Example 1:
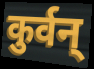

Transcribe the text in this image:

कुर्वन्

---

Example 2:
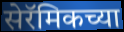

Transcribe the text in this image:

सेरॅमिकच्या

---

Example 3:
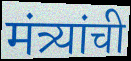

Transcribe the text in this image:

मंत्र्यांची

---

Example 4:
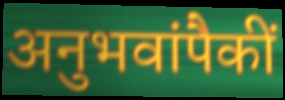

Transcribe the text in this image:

अनुभवांपैकीं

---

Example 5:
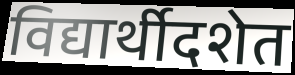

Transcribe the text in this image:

विद्यार्थीदशेत